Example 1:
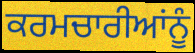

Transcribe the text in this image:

ਕਰਮਚਾਰੀਆਂਨੂੰ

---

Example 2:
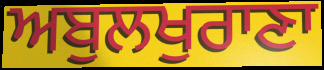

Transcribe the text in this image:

ਅਬੁਲਖੁਰਾਣਾ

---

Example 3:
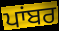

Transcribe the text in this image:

ਪਾਂਬਰ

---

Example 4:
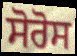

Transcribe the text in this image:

ਸੋਰੋਸ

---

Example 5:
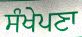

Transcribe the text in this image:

ਸੰਖੇਪਣਾ